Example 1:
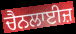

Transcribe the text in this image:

ਚੈਨਲਾਈਜ਼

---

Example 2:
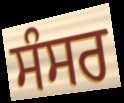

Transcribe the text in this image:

ਸੰਸਰ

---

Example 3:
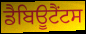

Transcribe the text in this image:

ਡੈਬਿਊਟੈਂਟਸ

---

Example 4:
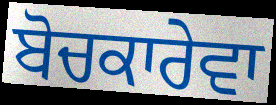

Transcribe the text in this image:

ਬੋਚਕਾਰੇਵਾ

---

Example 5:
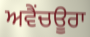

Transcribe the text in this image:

ਅਵੈਂਚਊਰਾ